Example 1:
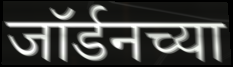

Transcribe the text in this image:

जॉर्डनच्या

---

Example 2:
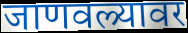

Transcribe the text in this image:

जाणवल्यावर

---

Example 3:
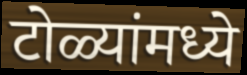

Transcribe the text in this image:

टोळ्यांमध्ये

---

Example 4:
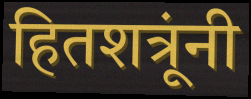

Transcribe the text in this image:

हितशत्रूंनी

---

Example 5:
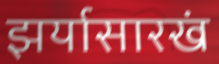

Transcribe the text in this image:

झर्यासारखं